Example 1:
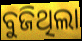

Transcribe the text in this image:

ବୁଜିଥିଲା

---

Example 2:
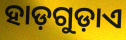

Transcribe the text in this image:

ହାଡ଼ଗୁଡ଼ାଏ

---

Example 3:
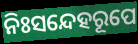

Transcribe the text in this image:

ନିଃସନ୍ଦେହରୂପେ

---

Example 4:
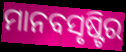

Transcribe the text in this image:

ମାନବସୃଷ୍ଟିର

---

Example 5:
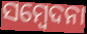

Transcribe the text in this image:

ସମ୍ବେଦନା